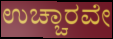
ಉಚ್ಚಾರವೇ